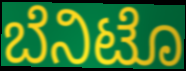
ಬೆನಿಟೊ